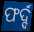
ଫର୍ଦ୍ଦ